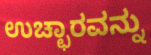
ಉಚ್ಛಾರವನ್ನು